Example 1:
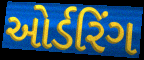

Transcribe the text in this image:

ઓર્ડરિંગ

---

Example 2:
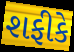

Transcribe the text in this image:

શફીકે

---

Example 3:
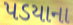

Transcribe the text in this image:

પડયાના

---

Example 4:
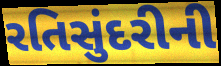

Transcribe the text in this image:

રતિસુંદરીની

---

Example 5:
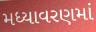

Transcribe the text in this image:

મધ્યાવરણમાં